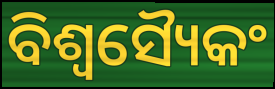
ବିଶ୍ୱସ୍ୟୈକଂ